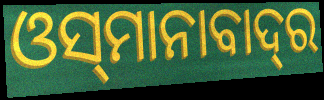
ଓସ୍‌ମାନାବାଦ୍‌ର